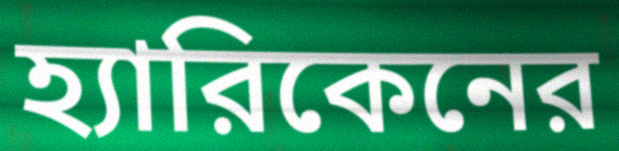
হ্যারিকেনের